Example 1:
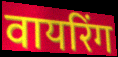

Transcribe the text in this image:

वायरिंग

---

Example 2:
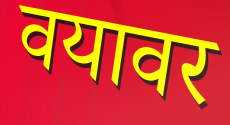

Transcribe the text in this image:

वयावर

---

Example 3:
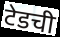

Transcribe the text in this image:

टेडची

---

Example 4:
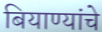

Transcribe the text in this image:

बियाण्यांचे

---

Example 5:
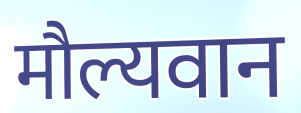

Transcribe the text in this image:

मौल्यवान